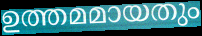
ഉത്തമമായതും